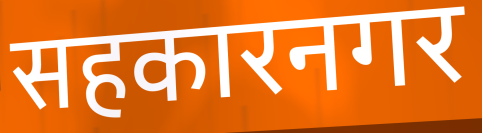
सहकारनगर